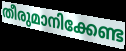
തീരുമാനിക്കേണ്ട